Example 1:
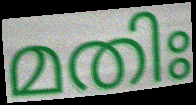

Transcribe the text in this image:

മതിഃ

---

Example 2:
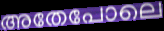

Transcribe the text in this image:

അതേപോലെ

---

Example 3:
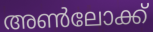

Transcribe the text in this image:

അൺലോക്ക്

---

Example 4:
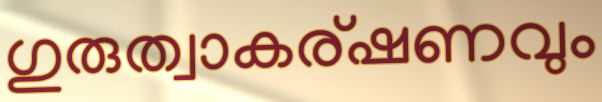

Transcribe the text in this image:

ഗുരുത്വാകര്ഷണവും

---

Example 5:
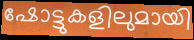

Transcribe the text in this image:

ഷോട്ടുകളിലുമായി